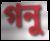
গনু